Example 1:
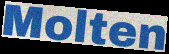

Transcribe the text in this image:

Molten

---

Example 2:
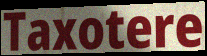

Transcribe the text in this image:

Taxotere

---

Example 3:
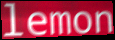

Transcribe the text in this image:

lemon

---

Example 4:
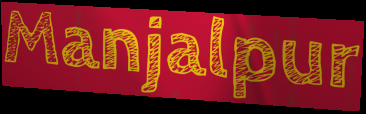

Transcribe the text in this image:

Manjalpur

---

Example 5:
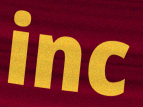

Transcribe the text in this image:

inc